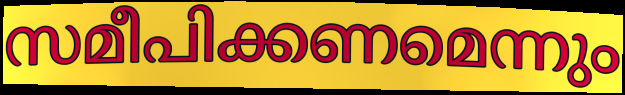
സമീപിക്കണമെന്നും